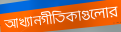
আখ্যানগীতিকাগুলোর